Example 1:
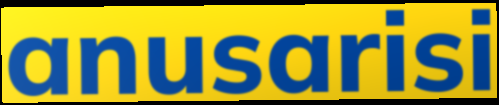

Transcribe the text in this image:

anusarisi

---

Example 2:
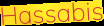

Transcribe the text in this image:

Hassabis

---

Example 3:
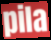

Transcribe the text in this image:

pila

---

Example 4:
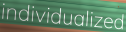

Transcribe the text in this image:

individualized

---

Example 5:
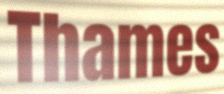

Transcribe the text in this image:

Thames